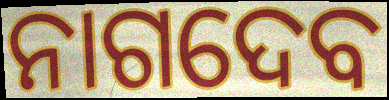
ନାଗଦେବ